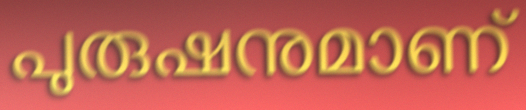
പുരുഷനുമാണ്